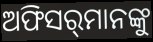
ଅଫିସର୍‌ମାନଙ୍କୁ